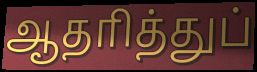
ஆதரித்துப்